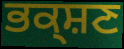
ਭਕ੍ਸ਼ਣ